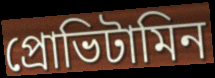
প্রোভিটামিন